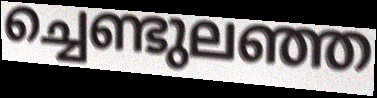
ച്ചെണ്ടുലഞ്ഞ